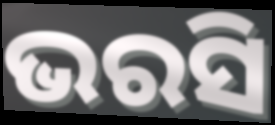
ଭରସି